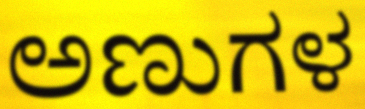
ಅಣುಗಳ